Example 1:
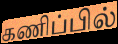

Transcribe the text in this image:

கணிப்பில்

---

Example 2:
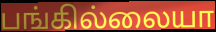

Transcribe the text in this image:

பங்கில்லையா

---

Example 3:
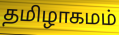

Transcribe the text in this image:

தமிழாகமம்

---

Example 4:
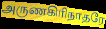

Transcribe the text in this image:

அருணகிரிநாதரே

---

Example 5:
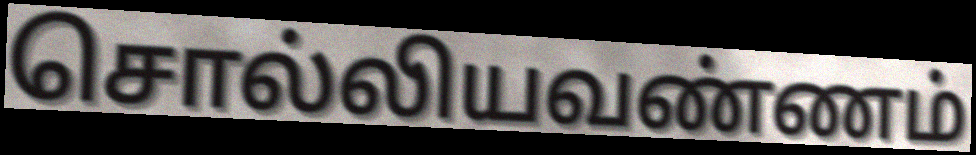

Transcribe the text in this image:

சொல்லியவண்ணம்